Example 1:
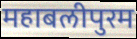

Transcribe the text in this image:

महाबलीपुरम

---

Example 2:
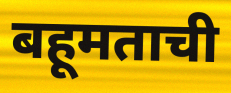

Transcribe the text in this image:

बहूमताची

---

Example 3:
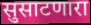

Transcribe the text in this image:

सुसाटणारा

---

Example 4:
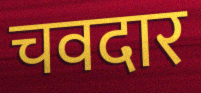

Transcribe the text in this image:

चवदार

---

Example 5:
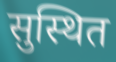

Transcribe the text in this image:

सुस्थित